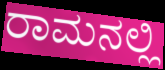
ರಾಮನಲ್ಲಿ